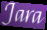
Jara